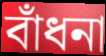
বাঁধনা